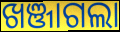
ଖଞ୍ଜାଗଲା